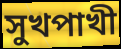
সুখপাখী